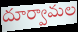
దూర్వామల